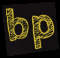
bp